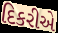
દિકરીએ